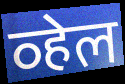
व्हेल